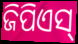
ଜିପିଏସ୍